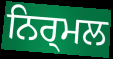
ਨਿਰ੍ਮਲ